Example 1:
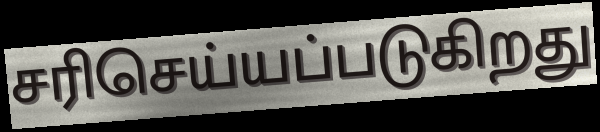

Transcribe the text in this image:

சரிசெய்யப்படுகிறது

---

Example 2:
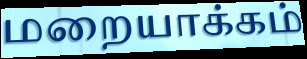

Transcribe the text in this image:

மறையாக்கம்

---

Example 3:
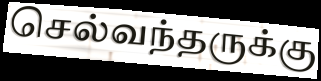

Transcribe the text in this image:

செல்வந்தருக்கு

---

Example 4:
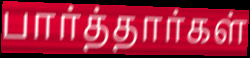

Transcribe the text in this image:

பார்த்தார்கள்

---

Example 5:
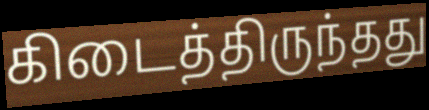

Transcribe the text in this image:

கிடைத்திருந்தது